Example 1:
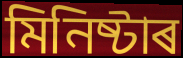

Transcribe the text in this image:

মিনিষ্টাৰ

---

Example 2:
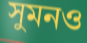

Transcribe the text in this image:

সুমনও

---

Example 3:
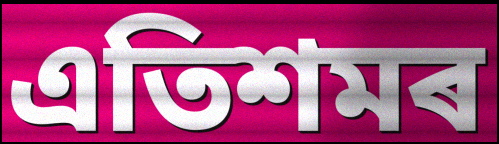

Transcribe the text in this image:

এতিশমৰ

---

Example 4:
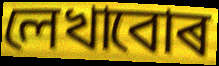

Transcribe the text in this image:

লেখাবোৰ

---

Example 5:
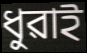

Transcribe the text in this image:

ধুৱাই